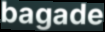
bagade